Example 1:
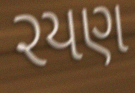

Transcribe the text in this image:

રયણ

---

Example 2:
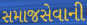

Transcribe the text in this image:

સમાજસેવાની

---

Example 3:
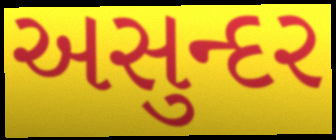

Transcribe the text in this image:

અસુન્દર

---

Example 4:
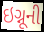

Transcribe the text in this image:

ઇગ્નૂની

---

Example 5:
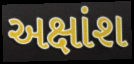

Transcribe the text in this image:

અક્ષાંશ